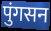
पुंगसन